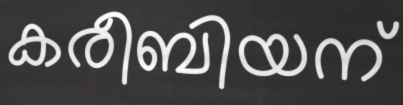
കരീബിയന്